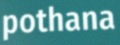
pothana